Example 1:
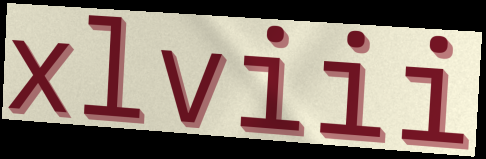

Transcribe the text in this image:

xlviii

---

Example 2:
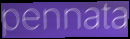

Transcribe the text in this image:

pennata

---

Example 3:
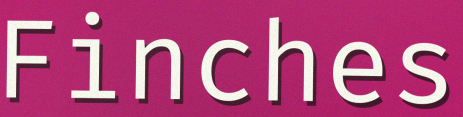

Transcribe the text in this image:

Finches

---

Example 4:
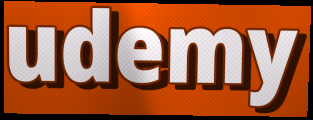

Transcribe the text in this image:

udemy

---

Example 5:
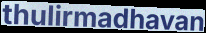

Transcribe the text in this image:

thulirmadhavan